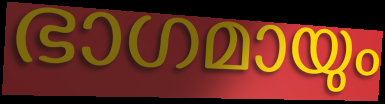
ഭാഗമായും